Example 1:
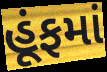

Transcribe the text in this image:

હૂંફમાં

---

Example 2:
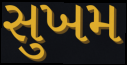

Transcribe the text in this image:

સુખમ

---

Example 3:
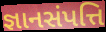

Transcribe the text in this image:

જ્ઞાનસંપત્તિ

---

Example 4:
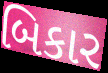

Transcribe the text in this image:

બિકાર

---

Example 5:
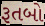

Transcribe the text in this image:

રૂતબો